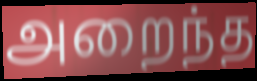
அறைந்த